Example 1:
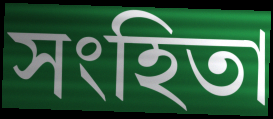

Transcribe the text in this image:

সংহিতা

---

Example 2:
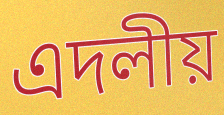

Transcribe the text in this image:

এদলীয়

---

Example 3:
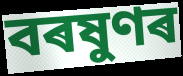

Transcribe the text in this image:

বৰষুণৰ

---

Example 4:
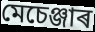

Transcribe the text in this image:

মেচেঞ্জাৰ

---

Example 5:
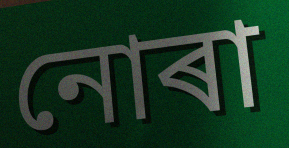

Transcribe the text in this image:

নোৰা